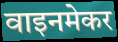
वाइनमेकर